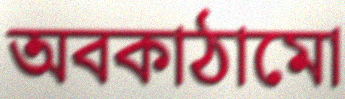
অবকাঠামো